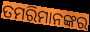
ତମରିମାନଙ୍କର